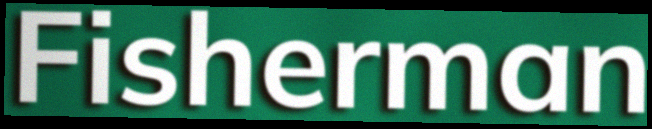
Fisherman